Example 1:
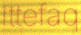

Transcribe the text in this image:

Ittefaq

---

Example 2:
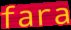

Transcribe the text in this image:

fara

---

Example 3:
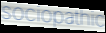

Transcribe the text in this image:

sociopathic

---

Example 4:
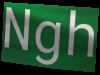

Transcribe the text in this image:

Ngh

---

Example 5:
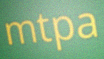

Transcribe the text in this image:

mtpa